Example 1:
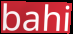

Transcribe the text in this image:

bahi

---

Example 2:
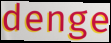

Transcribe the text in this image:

denge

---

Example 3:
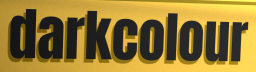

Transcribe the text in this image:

darkcolour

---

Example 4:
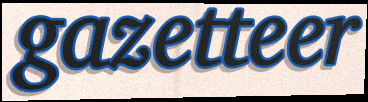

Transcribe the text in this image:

gazetteer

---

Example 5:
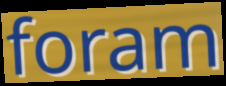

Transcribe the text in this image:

foram